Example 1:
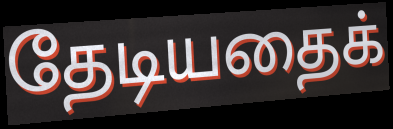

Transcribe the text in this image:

தேடியதைக்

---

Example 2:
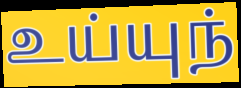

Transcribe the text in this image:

உய்யுந்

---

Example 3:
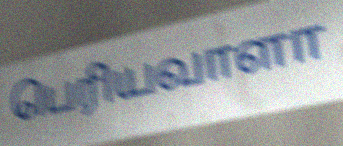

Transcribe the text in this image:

பெரியவாளா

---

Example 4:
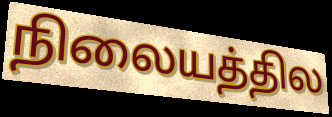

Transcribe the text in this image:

நிலையத்தில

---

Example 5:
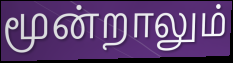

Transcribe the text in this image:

மூன்றாலும்